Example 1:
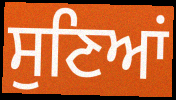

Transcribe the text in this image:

ਸੁਣਿਆਂ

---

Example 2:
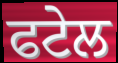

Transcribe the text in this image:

ਫਟੇਲ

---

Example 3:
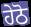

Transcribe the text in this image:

ਹੇਠੋ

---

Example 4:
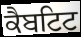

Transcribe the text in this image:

ਕੈਬਟਿਟ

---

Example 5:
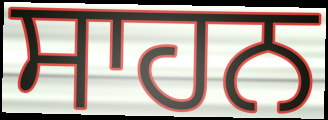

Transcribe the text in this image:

ਸਾਹਨ